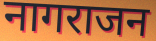
नागराजन